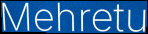
Mehretu